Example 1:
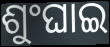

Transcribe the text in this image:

ଶୁଂଘାଇ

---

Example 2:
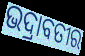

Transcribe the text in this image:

ଭଦ୍ରାବତୀର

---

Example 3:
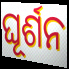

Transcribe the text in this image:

ଘୂର୍ଶନ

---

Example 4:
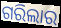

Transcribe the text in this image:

ଗରିଲାର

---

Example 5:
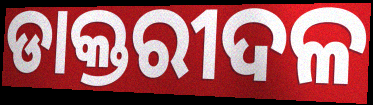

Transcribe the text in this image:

ଡାକ୍ତରୀଦଳ